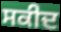
ਸਕੀਦ